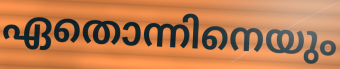
ഏതൊന്നിനെയും